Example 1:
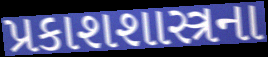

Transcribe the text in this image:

પ્રકાશશાસ્ત્રના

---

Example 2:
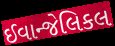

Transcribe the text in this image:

ઈવાન્જેલિકલ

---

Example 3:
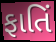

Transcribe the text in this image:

ફાતિં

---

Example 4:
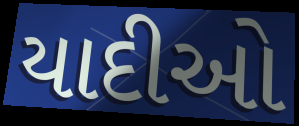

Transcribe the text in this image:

યાદીઓ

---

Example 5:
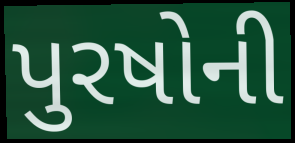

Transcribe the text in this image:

પુરષોની